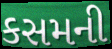
કસમની